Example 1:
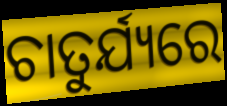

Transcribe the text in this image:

ଚାତୁର୍ଯ୍ୟରେ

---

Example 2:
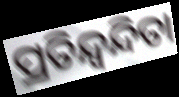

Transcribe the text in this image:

ପ୍ରତିନ୍ଦ୍ବନ୍ଦିତା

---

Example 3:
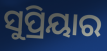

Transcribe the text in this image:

ସୁପ୍ରିୟାର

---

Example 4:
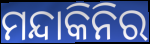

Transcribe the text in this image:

ମନ୍ଦାକିନିର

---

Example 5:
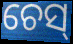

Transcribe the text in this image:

ଚେସ୍